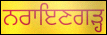
ਨਰਾਇਣਗੜ੍ਹ